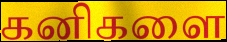
கனிகளை